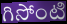
గిసోంటి